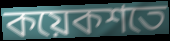
কয়েকশতে